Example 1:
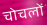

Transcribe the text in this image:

चोचलों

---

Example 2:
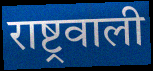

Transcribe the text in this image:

राष्ट्रवाली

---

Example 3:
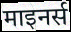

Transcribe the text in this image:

माइनर्स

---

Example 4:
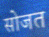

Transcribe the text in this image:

सोजत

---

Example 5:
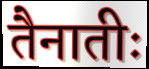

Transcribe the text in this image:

तैनातीः